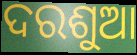
ଦରଶୁଆ